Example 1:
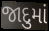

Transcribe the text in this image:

જાદુમાં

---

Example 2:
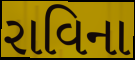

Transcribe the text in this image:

રાવિના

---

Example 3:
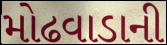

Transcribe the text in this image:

મોઢવાડાની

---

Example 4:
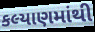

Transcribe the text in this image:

કલ્યાણમાંથી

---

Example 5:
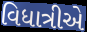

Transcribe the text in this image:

વિધાત્રીએ